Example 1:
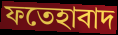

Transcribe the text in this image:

ফতেহাবাদ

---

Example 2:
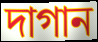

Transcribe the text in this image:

দাগান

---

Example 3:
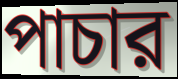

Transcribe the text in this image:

পাচার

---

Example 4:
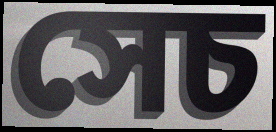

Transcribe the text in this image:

সেচ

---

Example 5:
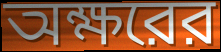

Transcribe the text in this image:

অক্ষরের